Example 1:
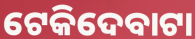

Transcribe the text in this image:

ଟେକିଦେବାଟା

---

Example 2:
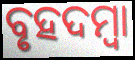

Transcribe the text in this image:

ବୃହଦମ୍ବା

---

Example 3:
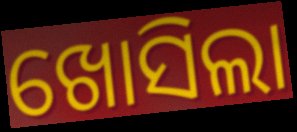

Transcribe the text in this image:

ଖୋସିଲା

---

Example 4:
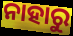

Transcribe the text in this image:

ନାହାରୁ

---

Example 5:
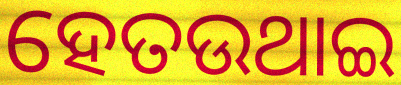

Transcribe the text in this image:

ହେତଉଥାଇ